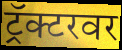
ट्रॅक्टरवर